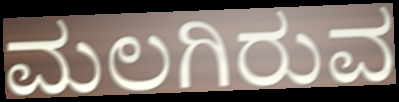
ಮಲಗಿರುವ